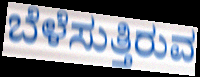
ಬೆಳೆಸುತ್ತಿರುವ